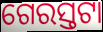
ଗେରସ୍ତଟା